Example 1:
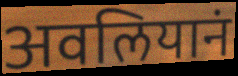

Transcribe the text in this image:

अवलियानं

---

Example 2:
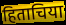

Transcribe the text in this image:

हिताचिया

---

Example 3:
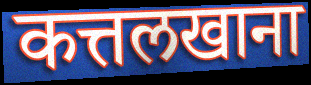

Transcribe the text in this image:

कत्तलखाना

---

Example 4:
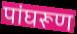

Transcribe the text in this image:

पांघरूण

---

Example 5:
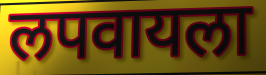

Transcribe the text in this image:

लपवायला